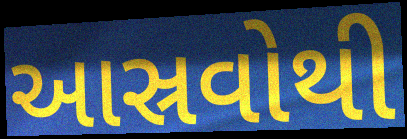
આસ્રવોથી